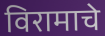
विरामाचे